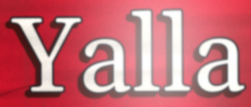
Yalla